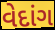
વેદાંગ